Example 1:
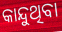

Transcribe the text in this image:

କାନ୍ଦୁଥିବା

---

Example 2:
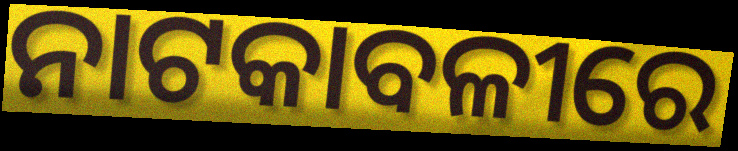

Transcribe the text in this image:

ନାଟକାବଳୀରେ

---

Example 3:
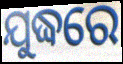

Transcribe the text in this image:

ଯୁଦ୍ଧରେ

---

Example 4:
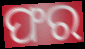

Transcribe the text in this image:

ଫର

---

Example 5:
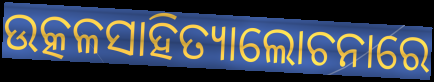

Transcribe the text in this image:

ଉତ୍କଳସାହିତ୍ୟାଲୋଚନାରେ